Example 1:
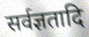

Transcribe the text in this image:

सर्वज्ञतादि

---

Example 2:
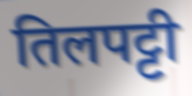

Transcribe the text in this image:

तिलपट्टी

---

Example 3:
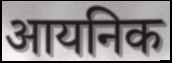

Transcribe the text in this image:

आयनिक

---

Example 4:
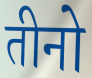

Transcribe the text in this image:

तीनो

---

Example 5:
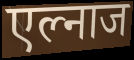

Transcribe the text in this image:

एल्नाज